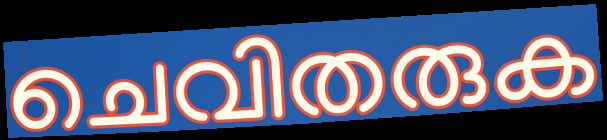
ചെവിതരുക